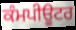
ਕੰਮਪੀਊਟਰ